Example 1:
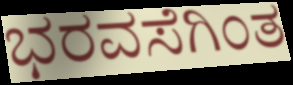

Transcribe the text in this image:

ಭರವಸೆಗಿಂತ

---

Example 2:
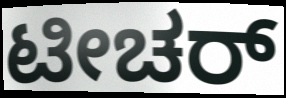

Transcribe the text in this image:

ಟೀಚರ್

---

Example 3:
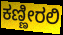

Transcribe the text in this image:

ಕಣ್ಣೀರಲಿ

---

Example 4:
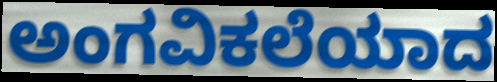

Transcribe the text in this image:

ಅಂಗವಿಕಲೆಯಾದ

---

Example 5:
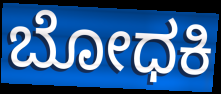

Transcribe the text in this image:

ಬೋಧಕಿ